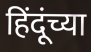
हिंदूंच्या